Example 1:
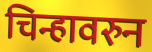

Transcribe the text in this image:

चिन्हावरुन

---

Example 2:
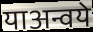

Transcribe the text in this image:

याअन्वये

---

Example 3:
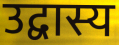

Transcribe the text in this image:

उद्वास्य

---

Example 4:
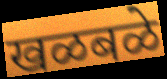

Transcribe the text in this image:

खळबळे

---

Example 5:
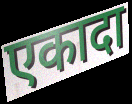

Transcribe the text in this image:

एकादा